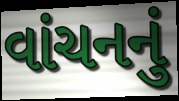
વાંચનનું